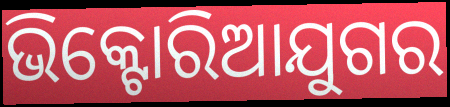
ଭିକ୍ଟୋରିଆଯୁଗର